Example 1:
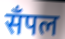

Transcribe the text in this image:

सँपल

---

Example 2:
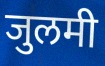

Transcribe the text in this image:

जुलमी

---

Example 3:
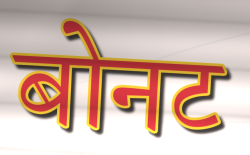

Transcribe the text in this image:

बोनट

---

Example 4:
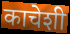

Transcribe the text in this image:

काचेशी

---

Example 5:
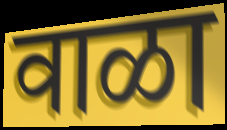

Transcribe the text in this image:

वाळा